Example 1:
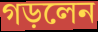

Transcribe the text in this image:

গড়লেন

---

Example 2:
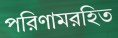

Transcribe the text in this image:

পরিণামরহিত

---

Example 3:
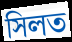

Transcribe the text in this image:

সিলত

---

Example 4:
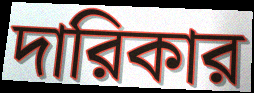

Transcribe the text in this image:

দারিকার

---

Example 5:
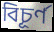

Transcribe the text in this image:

বিচূর্ণ